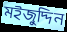
মইজুদ্দিন